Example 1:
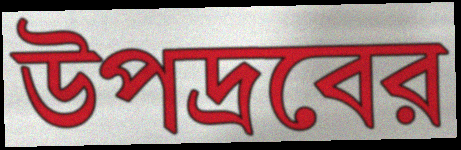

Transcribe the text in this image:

উপদ্রবের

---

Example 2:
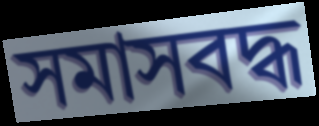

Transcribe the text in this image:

সমাসবদ্ধ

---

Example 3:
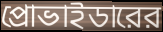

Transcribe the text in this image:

প্রোভাইডারের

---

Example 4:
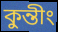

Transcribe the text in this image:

কুন্তীং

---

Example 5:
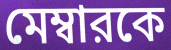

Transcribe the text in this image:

মেম্বারকে